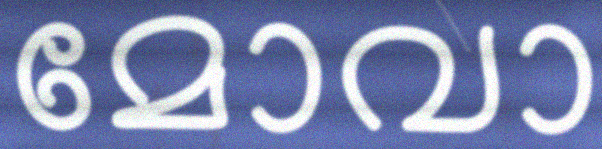
മോവാ